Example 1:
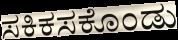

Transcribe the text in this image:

ಸಕಿಕಸಕೊಂಡು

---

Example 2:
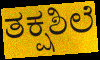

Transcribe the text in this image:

ತಕ್ಷಶಿಲೆ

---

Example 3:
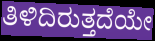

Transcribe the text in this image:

ತಿಳಿದಿರುತ್ತದೆಯೇ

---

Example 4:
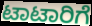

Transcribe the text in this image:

ಟಾಟಾರಿಗೆ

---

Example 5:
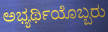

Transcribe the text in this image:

ಅಭ್ಯರ್ಥಿಯೊಬ್ಬರು